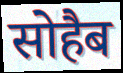
सोहैब